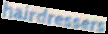
hairdressers